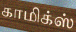
காமிக்ஸ்